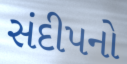
સંદીપનો